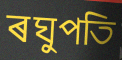
ৰঘুপতি